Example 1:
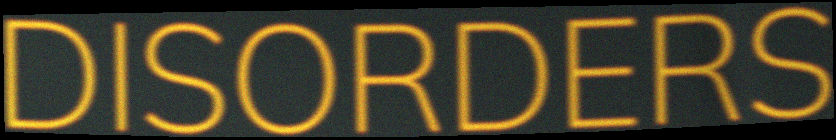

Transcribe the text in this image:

DISORDERS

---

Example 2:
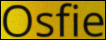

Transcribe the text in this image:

Osfie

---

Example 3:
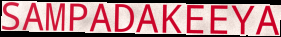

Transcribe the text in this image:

SAMPADAKEEYA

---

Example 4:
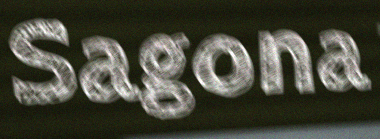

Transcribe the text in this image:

Sagona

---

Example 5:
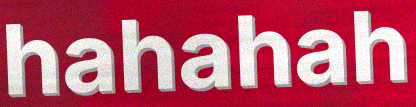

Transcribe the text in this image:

hahahah